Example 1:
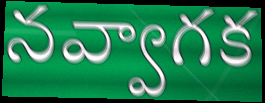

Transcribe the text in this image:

నవ్వాగక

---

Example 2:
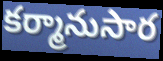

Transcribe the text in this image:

కర్మానుసార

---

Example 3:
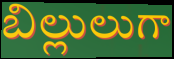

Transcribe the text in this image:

బిల్లులుగా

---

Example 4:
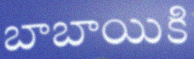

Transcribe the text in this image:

బాబాయికి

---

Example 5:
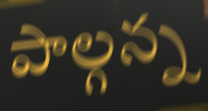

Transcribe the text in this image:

పాల్గన్న